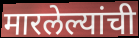
मारलेल्यांची